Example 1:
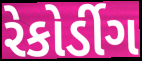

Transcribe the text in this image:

રેકોર્ડીગ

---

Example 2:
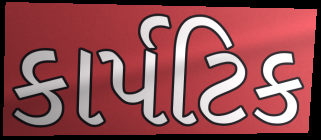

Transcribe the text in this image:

કાર્પટિક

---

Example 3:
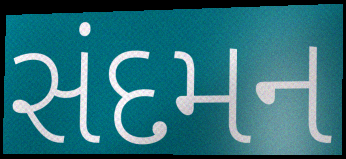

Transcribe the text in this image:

સંદમન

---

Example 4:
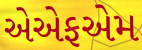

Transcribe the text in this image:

એએફએમ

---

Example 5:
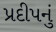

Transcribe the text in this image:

પ્રદીપનું